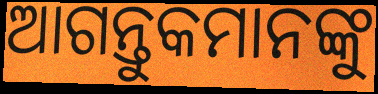
ଆଗନ୍ତୁକମାନଙ୍କୁ